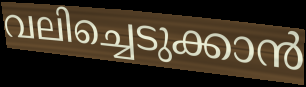
വലിച്ചെടുക്കാൻ